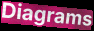
Diagrams